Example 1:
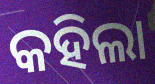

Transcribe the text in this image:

କହିଲା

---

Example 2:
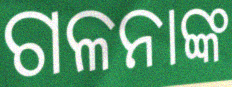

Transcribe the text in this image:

ଗଳନାଙ୍କ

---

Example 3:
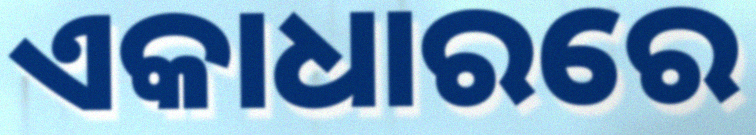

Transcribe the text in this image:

ଏକାଧାରରେ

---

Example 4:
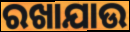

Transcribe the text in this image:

ରଖାଯାଉ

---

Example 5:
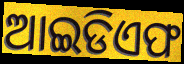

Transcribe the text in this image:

ଆଇଡିଏଫ